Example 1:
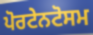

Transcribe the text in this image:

ਪੋਰਟੇਨਟੋਸਮ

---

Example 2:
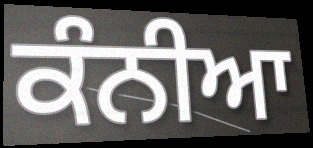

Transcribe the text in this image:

ਕੰਨੀਆ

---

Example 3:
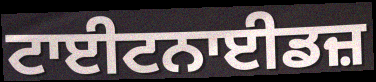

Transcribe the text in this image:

ਟਾਈਟਨਾਈਡਜ਼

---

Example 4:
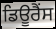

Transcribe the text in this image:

ਡਿਊਰੈਂਸ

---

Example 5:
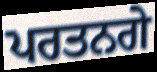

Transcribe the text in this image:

ਪਰਤਨਗੇ